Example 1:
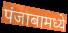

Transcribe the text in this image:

पंजाबामध्ये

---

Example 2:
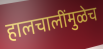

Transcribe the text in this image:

हालचालींमुळेच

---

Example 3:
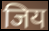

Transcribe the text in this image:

जिय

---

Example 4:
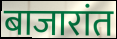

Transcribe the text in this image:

बाजारांत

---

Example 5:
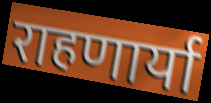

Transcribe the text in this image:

राहणार्या